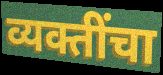
व्यक्तींचा